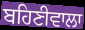
ਬਹਿਣੀਵਾਲਾ